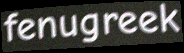
fenugreek